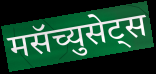
मसॅच्युसेट्स